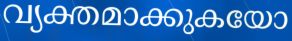
വ്യക്തമാക്കുകയോ